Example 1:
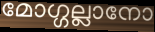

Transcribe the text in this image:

മോഗ്ഗല്ലാനോ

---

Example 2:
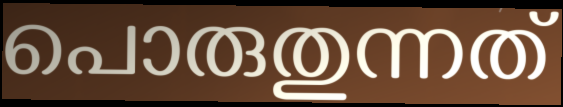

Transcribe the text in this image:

പൊരുതുന്നത്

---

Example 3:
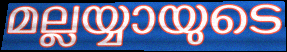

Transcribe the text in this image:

മല്ലയ്യായുടെ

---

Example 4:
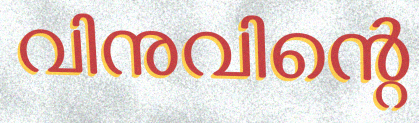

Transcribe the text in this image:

വിനുവിന്റെ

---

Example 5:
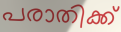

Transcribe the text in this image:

പരാതിക്ക്